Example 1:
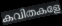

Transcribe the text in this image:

കവിതകളേ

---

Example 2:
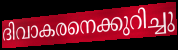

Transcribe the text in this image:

ദിവാകരനെക്കുറിച്ചു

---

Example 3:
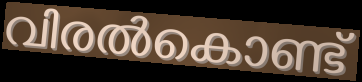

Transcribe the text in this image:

വിരൽകൊണ്ട്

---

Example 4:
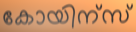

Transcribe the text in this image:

കോയിന്സ്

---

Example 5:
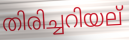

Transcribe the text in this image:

തിരിച്ചറിയല്